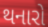
થનારો